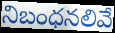
నిబంధనలివే